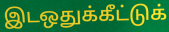
இடஒதுக்கீட்டுக்